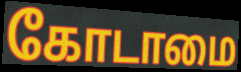
கோடாமை